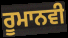
ਰੂਮਾਨਵੀ